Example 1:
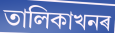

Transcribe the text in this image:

তালিকাখনৰ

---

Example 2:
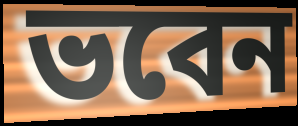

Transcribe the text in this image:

ভবেন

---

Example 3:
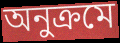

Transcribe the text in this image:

অনুক্ৰমে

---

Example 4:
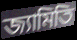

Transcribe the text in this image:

জ্যামিতি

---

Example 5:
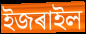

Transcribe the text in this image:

ইজৰাইল